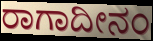
ರಾಗಾದೀನಂ